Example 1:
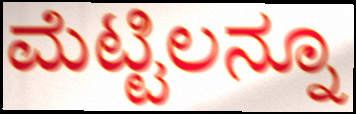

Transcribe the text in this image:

ಮೆಟ್ಟಿಲನ್ನೂ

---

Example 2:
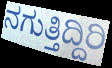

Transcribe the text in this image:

ನಗುತ್ತಿದ್ದಿರಿ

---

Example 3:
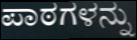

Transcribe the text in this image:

ಪಾಠಗಳನ್ನು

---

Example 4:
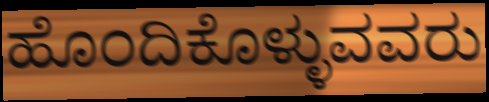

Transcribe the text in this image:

ಹೊಂದಿಕೊಳ್ಳುವವರು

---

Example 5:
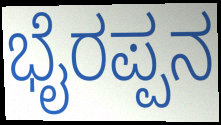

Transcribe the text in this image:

ಭೈರಪ್ಪನ